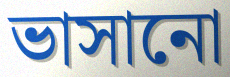
ভাসানো